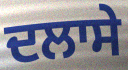
ਦਲਾਸੇ